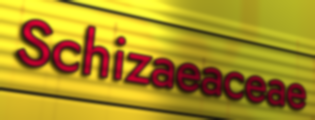
Schizaeaceae